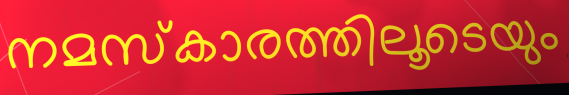
നമസ്കാരത്തിലൂടെയും